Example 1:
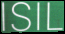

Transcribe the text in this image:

ISIL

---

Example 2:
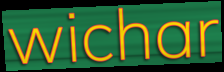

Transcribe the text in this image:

wichar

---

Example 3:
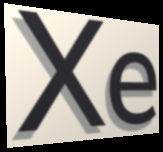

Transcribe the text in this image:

Xe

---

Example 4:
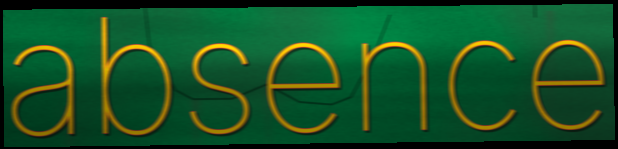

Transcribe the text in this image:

absence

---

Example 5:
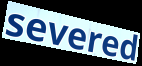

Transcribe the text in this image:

severed